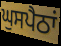
ਘੁਸਪੈਠਾਂ